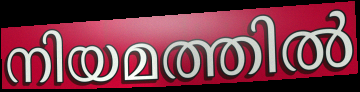
നിയമത്തിൽ